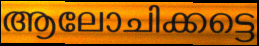
ആലോചിക്കട്ടെ